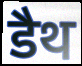
डैथ